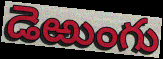
డెఱుంగు